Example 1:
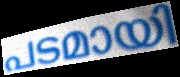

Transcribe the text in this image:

പടമായി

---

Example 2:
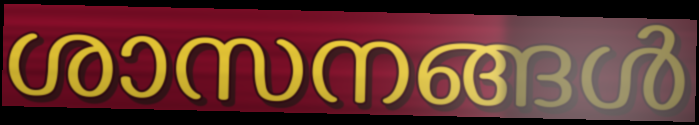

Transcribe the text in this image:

ശാസനങ്ങൾ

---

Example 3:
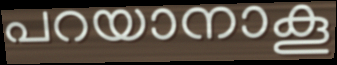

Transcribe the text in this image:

പറയാനാകൂ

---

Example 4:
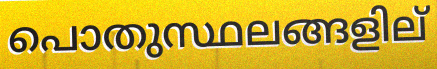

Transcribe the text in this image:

പൊതുസ്ഥലങ്ങളില്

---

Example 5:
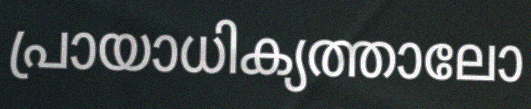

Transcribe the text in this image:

പ്രായാധിക്യത്താലോ